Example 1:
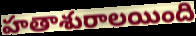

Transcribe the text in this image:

హతాశురాలయింది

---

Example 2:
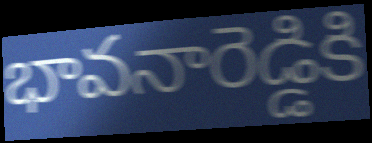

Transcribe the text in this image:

భావనారెడ్డికి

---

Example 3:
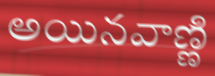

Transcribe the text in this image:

అయినవాణ్ణి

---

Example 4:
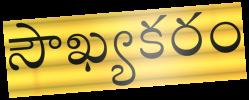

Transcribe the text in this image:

సౌఖ్యకరం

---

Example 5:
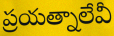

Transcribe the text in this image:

ప్రయత్నాలేవీ